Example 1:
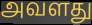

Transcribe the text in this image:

அவளது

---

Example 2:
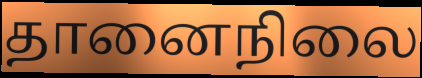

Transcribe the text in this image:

தானைநிலை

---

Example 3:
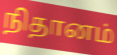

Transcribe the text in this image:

நிதானம்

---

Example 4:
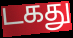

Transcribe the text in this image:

டகது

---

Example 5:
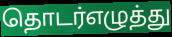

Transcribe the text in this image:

தொடர்எழுத்து